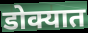
डोक्यात